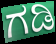
ಗಡಿ